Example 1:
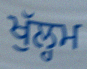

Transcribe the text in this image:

ਖੁੱਲ੍ਹਮ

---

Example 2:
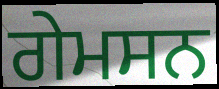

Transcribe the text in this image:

ਗੇਮਸਨ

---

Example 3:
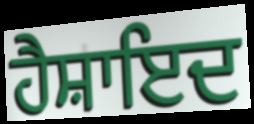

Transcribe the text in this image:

ਹੈਸ਼ਾਇਦ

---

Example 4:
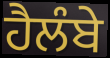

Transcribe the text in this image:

ਹੈਲੰਬੇ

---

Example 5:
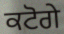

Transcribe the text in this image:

ਕਟੋਗੇ